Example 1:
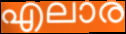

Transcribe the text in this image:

എലാര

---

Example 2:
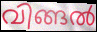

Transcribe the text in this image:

വിങ്ങൽ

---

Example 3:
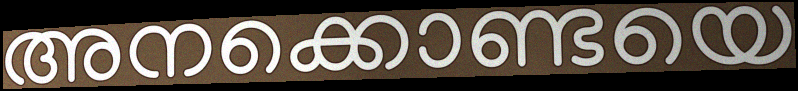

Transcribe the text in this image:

അനക്കൊണ്ടയെ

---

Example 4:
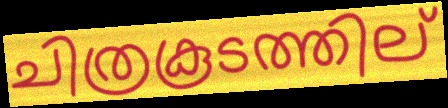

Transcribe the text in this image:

ചിത്രകൂടത്തില്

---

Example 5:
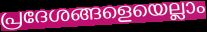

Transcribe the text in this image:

പ്രദേശങ്ങളെയെല്ലാം